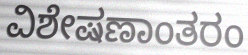
ವಿಶೇಷಣಾಂತರಂ